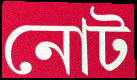
নোট